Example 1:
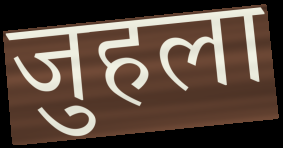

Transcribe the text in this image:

जुहला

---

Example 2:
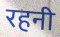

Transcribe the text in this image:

रहनी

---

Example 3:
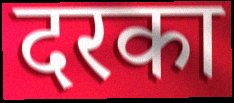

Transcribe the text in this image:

दरका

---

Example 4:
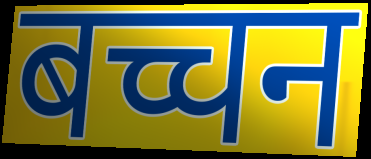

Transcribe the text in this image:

बच्चन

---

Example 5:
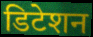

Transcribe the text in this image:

डिटेशन